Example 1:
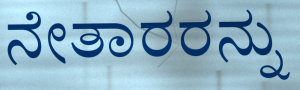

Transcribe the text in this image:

ನೇತಾರರನ್ನು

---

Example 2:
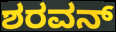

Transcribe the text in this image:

ಶರವನ್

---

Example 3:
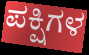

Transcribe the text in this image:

ಪಕ್ಷಿಗಳ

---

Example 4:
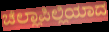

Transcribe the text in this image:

ಚೆಲ್ಲಾಪಿಲ್ಲಿಯಾದ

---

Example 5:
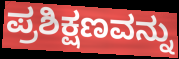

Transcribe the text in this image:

ಪ್ರಶಿಕ್ಷಣವನ್ನು